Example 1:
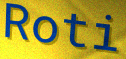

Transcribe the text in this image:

Roti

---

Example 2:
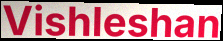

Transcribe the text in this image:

Vishleshan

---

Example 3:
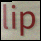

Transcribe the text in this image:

lip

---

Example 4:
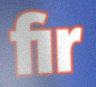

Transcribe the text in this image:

fir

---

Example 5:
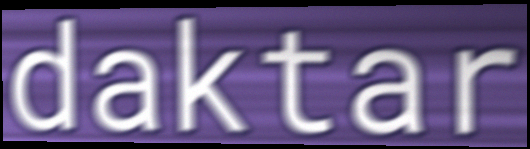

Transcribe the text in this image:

daktar